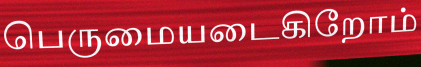
பெருமையடைகிறோம்